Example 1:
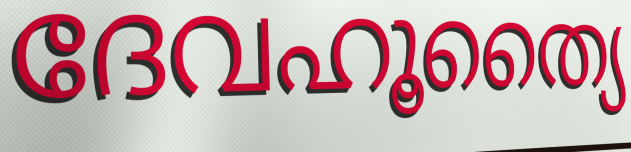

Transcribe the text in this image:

ദേവഹൂത്യൈ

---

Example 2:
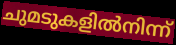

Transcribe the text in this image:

ചുമടുകളിൽനിന്ന്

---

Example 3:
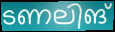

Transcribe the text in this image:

ടണലിങ്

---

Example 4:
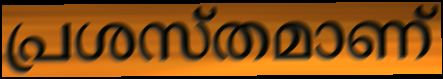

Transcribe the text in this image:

പ്രശസ്തമാണ്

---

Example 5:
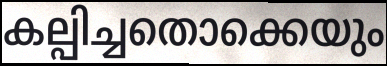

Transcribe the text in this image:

കല്പിച്ചതൊക്കെയും